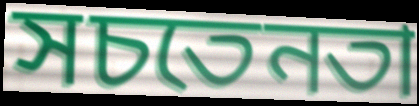
সচতেনতা